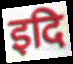
इदि